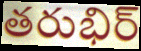
తరుభిర్